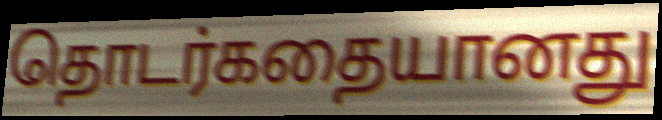
தொடர்கதையானது